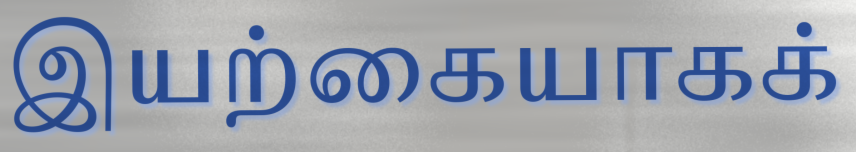
இயற்கையாகக்